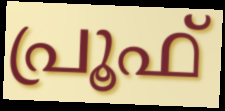
പ്രൂഫ്